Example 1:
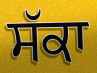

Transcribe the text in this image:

ਸੱਕਾ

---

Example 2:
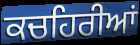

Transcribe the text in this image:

ਕਚਹਿਰੀਆਂ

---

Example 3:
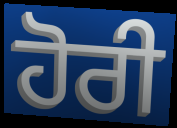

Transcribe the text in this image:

ਹੋਰੀ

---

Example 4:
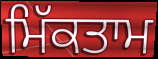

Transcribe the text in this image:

ਮਿੱਕਤਾਮ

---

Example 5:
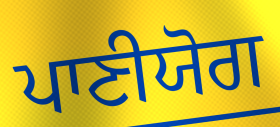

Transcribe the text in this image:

ਪਾਣੀਯੋਗ